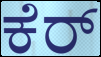
ಕೆರ್